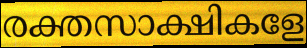
രക്തസാക്ഷികളേ